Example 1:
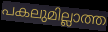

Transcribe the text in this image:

പകലുമില്ലാത്ത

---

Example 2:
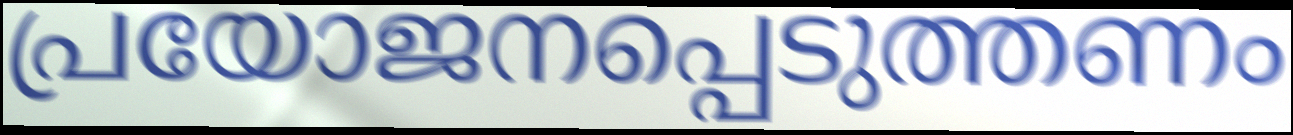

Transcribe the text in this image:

പ്രയോജനപ്പെടുത്തണം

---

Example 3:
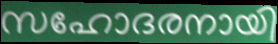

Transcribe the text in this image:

സഹോദരനായി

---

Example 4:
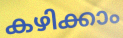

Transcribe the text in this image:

കഴിക്കാം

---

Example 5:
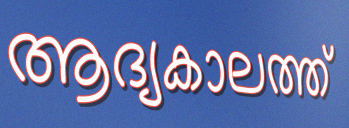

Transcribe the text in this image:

ആദ്യകാലത്ത്